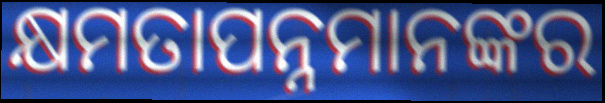
କ୍ଷମତାପନ୍ନମାନଙ୍କର